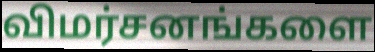
விமர்சனங்களை